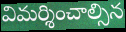
విమర్శించాల్సిన